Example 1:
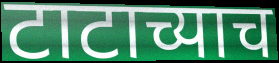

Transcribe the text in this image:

टाटाच्याच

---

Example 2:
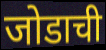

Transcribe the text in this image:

जोडाची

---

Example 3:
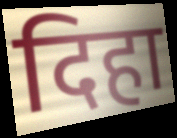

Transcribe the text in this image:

दिहा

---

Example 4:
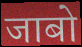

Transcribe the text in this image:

जाबो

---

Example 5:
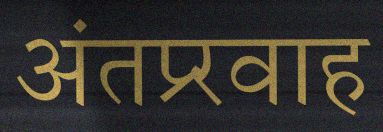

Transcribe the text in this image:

अंतप्र्रवाह